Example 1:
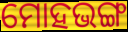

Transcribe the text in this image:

ମୋହଭଙ୍ଗ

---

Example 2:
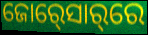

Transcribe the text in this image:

ଜୋର୍‍ସୋର୍‌ରେ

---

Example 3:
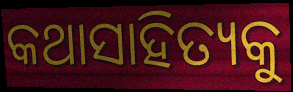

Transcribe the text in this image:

କଥାସାହିତ୍ୟକୁ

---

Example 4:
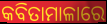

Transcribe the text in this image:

କବିତାମାଳାରେ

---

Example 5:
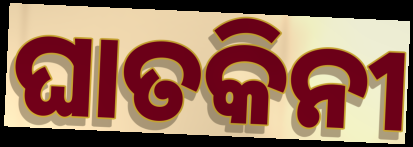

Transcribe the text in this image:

ଘାତକିନୀ